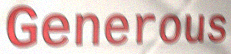
Generous